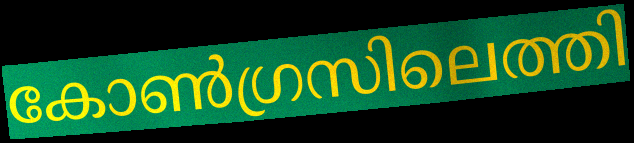
കോൺഗ്രസിലെത്തി